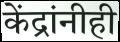
केंद्रांनीही